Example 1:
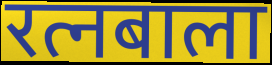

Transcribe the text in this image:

रत्नबाला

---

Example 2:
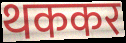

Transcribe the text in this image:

थककर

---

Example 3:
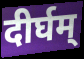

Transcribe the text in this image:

दीर्घम्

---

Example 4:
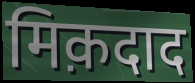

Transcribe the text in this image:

मिक़दाद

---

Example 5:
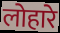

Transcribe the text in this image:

लोहारे